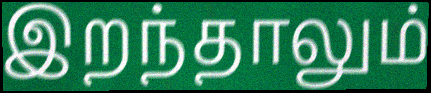
இறந்தாலும்